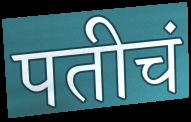
पतीचं